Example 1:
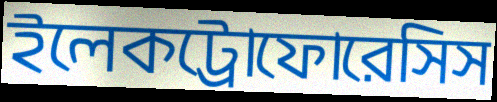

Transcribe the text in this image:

ইলেকট্রোফোরেসিস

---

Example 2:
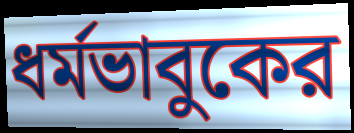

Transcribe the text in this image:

ধর্মভাবুকের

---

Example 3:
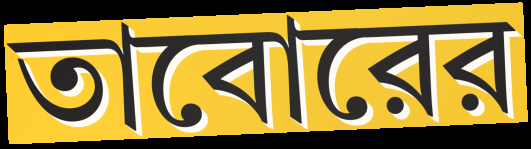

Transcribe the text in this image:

তাবোরের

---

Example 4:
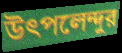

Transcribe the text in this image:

উৎপলেন্দুর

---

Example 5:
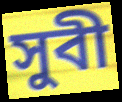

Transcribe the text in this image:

সুবী